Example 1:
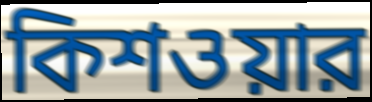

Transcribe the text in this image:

কিশওয়ার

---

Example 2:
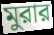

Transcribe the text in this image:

মুরার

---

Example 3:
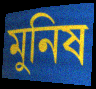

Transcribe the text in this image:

মুনিষ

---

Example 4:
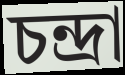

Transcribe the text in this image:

চন্দ্রা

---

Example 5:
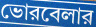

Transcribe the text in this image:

ভোরবেলার